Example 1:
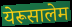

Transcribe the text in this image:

येरूसालेम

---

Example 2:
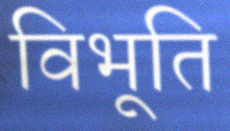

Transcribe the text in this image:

विभूति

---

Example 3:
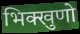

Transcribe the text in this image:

भिक्खुणो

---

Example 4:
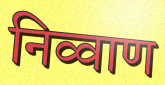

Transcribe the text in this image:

निव्वाण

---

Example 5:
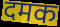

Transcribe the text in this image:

दमक